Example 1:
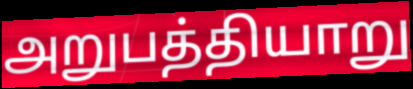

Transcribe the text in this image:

அறுபத்தியாறு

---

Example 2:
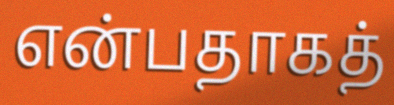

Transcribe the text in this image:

என்பதாகத்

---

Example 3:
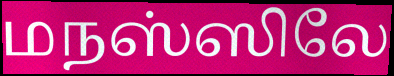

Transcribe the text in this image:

மநஸ்ஸிலே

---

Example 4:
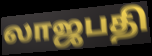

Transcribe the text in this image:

லாஜபதி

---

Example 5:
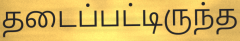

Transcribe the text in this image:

தடைப்பட்டிருந்த